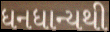
ધનધાન્યથી